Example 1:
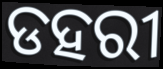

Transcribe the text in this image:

ଡହରୀ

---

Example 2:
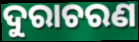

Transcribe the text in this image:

ଦୁରାଚରଣ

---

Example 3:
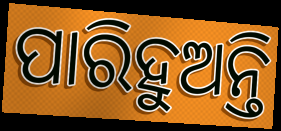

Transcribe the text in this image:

ପାରିହୁଅନ୍ତି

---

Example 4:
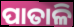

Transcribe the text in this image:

ପାତାଳି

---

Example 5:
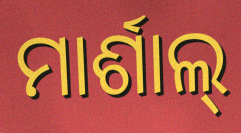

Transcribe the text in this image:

ମାର୍ଶାଲ୍